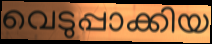
വെടുപ്പാക്കിയ